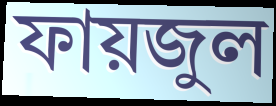
ফায়জুল